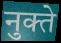
नुक्ते